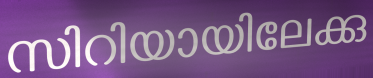
സിറിയായിലേക്കു